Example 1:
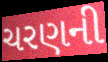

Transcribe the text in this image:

ચરણની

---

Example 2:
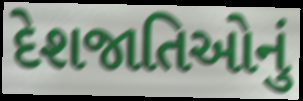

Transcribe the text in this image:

દેશજાતિઓનું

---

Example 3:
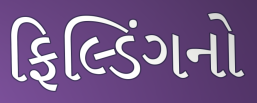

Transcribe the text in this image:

ફિલ્ડિંગનો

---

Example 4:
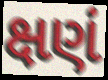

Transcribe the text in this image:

ક્ષણં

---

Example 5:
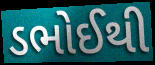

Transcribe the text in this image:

ડભોઈથી